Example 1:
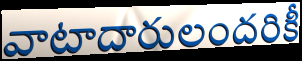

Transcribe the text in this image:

వాటాదారులందరికీ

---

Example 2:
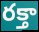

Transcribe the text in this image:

రక్తా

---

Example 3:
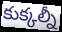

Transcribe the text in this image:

కుక్కల్నీ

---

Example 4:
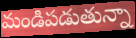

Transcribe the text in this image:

మండిపడుతున్నా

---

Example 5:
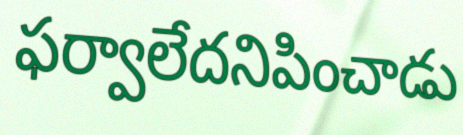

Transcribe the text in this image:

ఫర్వాలేదనిపించాడు